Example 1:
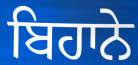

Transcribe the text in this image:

ਬਿਹਾਨੇ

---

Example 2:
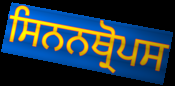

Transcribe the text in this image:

ਸਿਨਨਥ੍ਰੋਪਸ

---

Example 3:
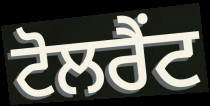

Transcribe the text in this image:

ਟੋਲਰੈਂਟ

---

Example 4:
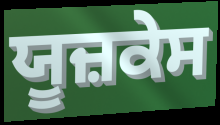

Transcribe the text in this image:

ਯੂਜ਼ਕੇਸ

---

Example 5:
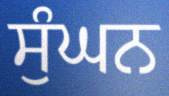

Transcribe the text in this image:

ਸੁੰਘਨ